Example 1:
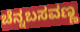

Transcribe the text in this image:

ಚೆನ್ನಬಸವಣ್ಣ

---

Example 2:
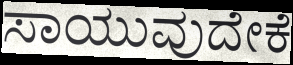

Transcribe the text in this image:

ಸಾಯುವುದೇಕೆ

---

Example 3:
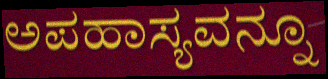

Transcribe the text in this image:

ಅಪಹಾಸ್ಯವನ್ನೂ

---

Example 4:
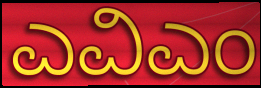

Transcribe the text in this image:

ಎವಿಎಂ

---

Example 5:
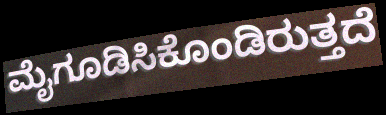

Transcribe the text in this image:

ಮೈಗೂಡಿಸಿಕೊಂಡಿರುತ್ತದೆ